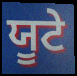
ਯੂਟੇ